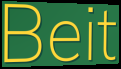
Beit